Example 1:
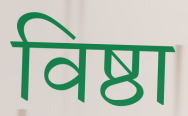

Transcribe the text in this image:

विष्ठा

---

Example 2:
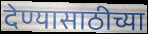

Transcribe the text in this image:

देण्यासाठीच्या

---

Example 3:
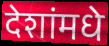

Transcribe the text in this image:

देशांमधे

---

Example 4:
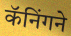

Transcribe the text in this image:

कॅनिंगने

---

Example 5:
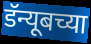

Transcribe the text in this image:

डॅन्यूबच्या